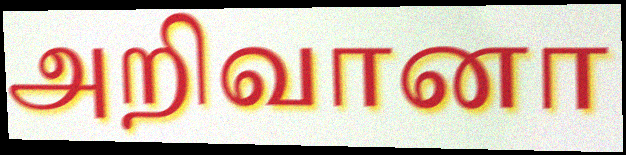
அறிவானா